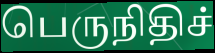
பெருநிதிச்